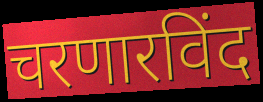
चरणारविंद